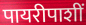
पायरीपाशीं